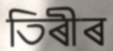
তিৰীৰ